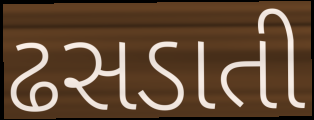
ઢસડાતી